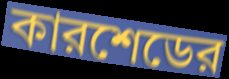
কারশেডের